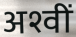
अश्वीं